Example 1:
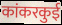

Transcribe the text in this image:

कांकरकुई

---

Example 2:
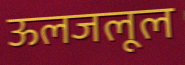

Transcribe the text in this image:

ऊलजलूल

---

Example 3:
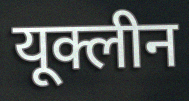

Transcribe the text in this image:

यूक्लीन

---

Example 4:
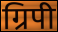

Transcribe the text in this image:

ग्रिपी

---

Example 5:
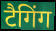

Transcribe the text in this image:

टैगिंग